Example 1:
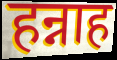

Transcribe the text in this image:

हन्नाह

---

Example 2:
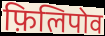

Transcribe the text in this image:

फ़िलिपोव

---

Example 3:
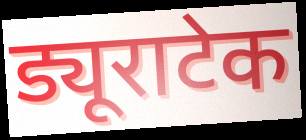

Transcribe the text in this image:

ड्यूराटेक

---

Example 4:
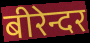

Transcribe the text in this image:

बीरेन्दर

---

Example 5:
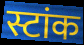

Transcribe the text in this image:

स्टांक